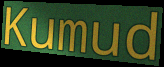
Kumud